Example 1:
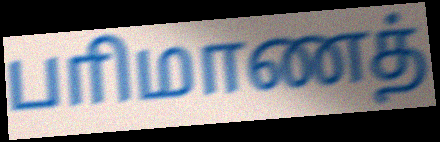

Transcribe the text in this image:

பரிமாணத்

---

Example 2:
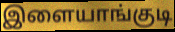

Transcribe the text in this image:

இளையாங்குடி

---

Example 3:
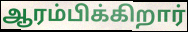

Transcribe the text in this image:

ஆரம்பிக்கிறார்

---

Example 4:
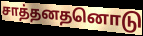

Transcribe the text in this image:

சாத்தனதனொடு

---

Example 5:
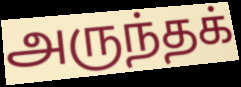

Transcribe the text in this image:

அருந்தக்